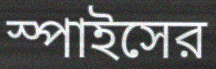
স্পাইসের